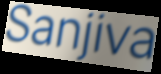
Sanjiva